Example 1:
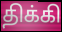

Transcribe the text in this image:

திக்கி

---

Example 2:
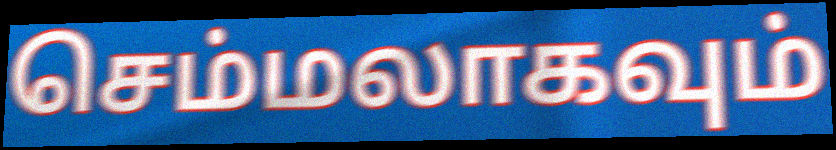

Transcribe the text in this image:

செம்மலாகவும்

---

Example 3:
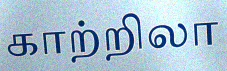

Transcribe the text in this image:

காற்றிலா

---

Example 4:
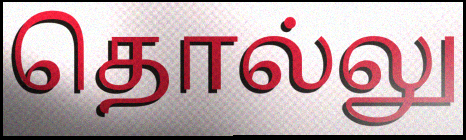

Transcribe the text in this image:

தொல்லு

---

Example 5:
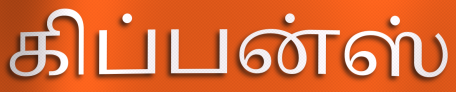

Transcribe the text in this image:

கிப்பன்ஸ்